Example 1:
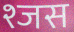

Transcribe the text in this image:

श्जस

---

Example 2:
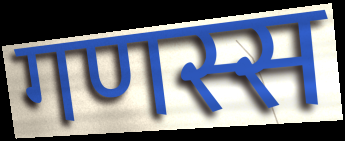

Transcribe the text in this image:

गणस्स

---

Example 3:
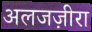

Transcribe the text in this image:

अलजज़ीरा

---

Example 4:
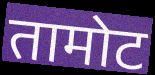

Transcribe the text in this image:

तामोट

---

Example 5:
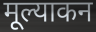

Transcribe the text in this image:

मूल्याकन